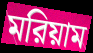
মরিয়াম